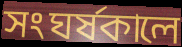
সংঘর্ষকালে